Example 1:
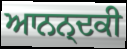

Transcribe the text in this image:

ਆਨਨ੍ਦਕੀ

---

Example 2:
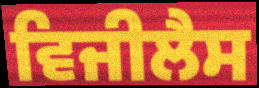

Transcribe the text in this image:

ਵਿਜੀਲੈਸ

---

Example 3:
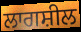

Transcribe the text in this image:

ਲਾਗਸ਼ੀਲ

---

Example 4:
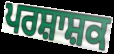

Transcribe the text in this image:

ਪਰਸ਼ਾਸ਼ਕ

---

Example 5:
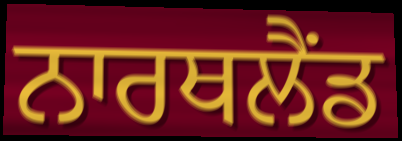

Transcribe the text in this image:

ਨਾਰਥਲੈਂਡ